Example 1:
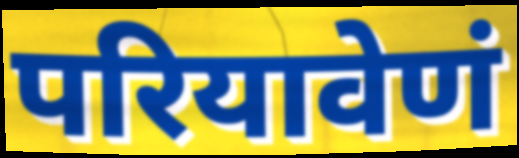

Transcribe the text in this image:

परियावेणं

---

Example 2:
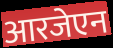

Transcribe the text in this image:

आरजेएन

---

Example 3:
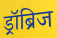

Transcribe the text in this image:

ड्रॉब्रिज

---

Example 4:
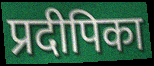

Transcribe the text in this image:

प्रदीपिका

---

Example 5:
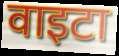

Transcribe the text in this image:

वाइटा